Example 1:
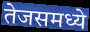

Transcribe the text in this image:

तेजसमध्ये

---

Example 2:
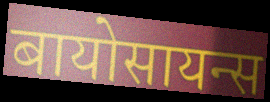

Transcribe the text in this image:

बायोसायन्स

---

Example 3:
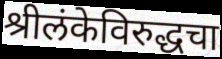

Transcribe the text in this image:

श्रीलंकेविरुद्धचा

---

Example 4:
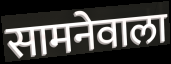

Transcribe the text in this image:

सामनेवाला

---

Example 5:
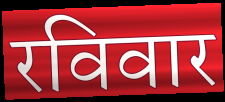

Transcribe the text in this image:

रविवार